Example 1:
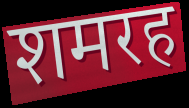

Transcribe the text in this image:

शमरह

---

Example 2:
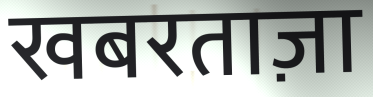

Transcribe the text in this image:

खबरताज़ा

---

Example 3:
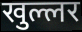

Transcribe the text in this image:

खुल्लर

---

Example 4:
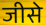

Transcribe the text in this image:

जीसे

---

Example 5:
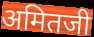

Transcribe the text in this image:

अमितजी